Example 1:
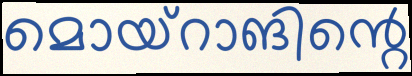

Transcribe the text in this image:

മൊയ്റാങിന്റെ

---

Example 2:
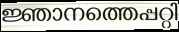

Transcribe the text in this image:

ജ്ഞാനത്തെപ്പറ്റി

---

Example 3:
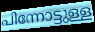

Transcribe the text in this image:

പിന്നോട്ടുള്ള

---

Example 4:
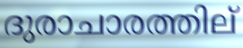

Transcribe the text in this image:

ദുരാചാരത്തില്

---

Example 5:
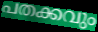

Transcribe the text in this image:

പതക്കവും